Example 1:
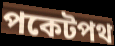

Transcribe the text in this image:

পকেটপথ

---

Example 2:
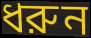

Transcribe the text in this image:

ধরুন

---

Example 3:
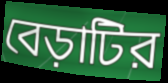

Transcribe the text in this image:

বেড়াটির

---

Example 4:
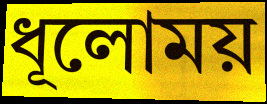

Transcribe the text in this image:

ধূলোময়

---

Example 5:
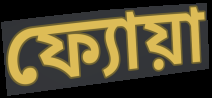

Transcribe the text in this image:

ফ্যোয়া